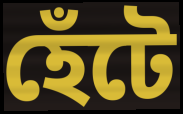
হেঁটে